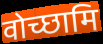
वोच्छामि